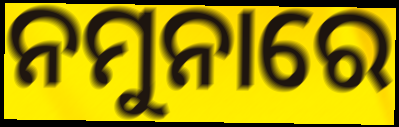
ନମୁନାରେ